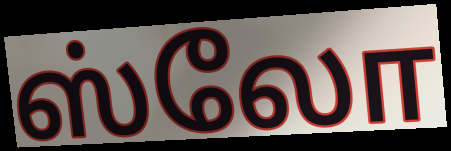
ஸ்லோ